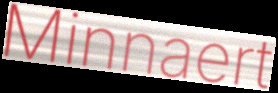
Minnaert